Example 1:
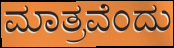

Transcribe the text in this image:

ಮಾತ್ರವೆಂದು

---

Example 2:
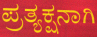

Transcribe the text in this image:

ಪ್ರತ್ಯಕ್ಷನಾಗಿ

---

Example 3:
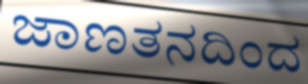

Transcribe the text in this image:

ಜಾಣತನದಿಂದ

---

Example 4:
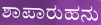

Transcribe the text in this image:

ಶಾಪಾರುಹನು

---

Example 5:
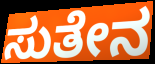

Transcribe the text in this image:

ಸುತೇನ